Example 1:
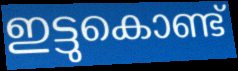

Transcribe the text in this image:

ഇട്ടുകൊണ്ട്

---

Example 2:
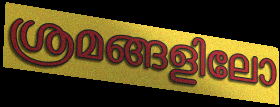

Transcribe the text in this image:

ശ്രമങ്ങളിലോ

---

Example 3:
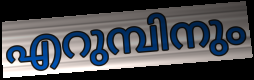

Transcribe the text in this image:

എറുമ്പിനും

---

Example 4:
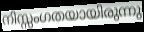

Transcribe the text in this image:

നിസ്സംഗതയായിരുന്നു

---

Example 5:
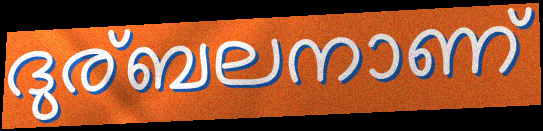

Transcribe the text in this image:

ദുര്ബലനാണ്